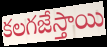
కలగజేస్తాయి